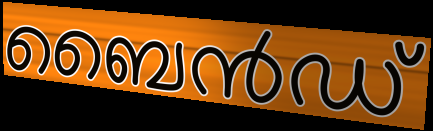
ബൈൻഡ്